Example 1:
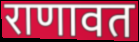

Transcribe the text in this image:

राणावत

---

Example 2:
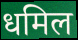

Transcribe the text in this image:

धमिल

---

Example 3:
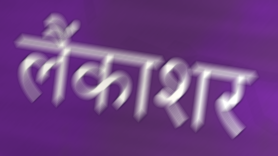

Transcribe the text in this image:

लैंकाशर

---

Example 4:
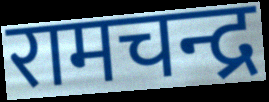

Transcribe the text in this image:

रामचन्‍द्र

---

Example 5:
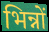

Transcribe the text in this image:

भिन्नों